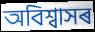
অবিশ্বাসৰ